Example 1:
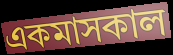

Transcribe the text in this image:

একমাসকাল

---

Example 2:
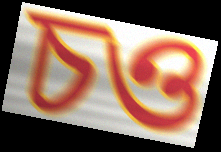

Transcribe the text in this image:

চও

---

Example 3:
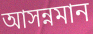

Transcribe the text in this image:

আসন্নমান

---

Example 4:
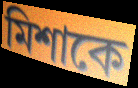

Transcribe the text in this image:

মিশাকে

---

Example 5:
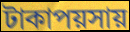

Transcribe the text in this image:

টাকাপয়সায়